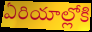
ఏరియాల్లోకి